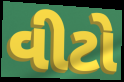
વીટો